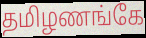
தமிழணங்கே